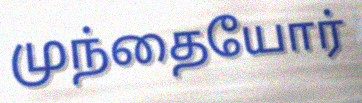
முந்தையோர்